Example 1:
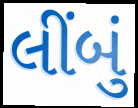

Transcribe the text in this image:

લીંબું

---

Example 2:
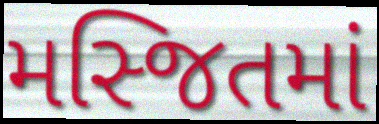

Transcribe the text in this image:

મસ્જિતમાં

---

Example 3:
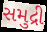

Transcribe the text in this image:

સમુદ્રી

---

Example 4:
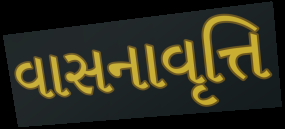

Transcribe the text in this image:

વાસનાવૃત્તિ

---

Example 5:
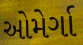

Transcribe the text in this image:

ઓમેર્ગા